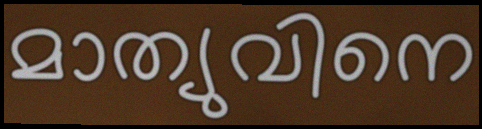
മാത്യുവിനെ